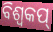
ବିଶ୍ବକପ୍